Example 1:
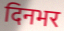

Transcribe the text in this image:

दिनभर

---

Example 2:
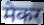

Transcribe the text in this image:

मेकर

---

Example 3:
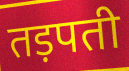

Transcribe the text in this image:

तड़पती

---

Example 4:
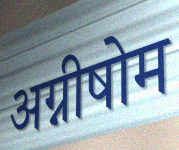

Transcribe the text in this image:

अग्नीषोम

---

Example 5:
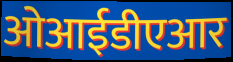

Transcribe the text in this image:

ओआईडीएआर